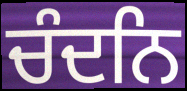
ਚੰਦਨਿ